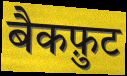
बैकफ़ुट